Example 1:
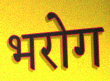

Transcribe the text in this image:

भरोग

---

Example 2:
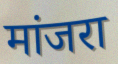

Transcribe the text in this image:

मांजरा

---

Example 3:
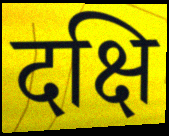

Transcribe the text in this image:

दक्षि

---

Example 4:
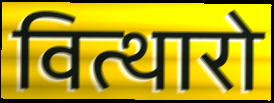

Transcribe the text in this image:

वित्थारो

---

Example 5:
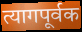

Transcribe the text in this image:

त्यागपूर्वक